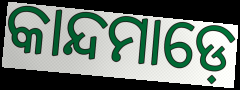
କାନ୍ଦମାଡ଼େ